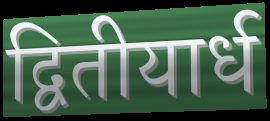
द्वितीयार्ध